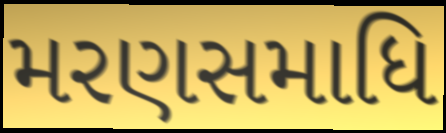
મરણસમાધિ